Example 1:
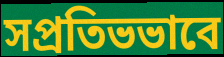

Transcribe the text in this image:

সপ্রতিভভাবে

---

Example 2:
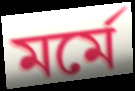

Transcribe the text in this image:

মর্মে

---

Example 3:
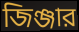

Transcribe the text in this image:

জিঞ্জার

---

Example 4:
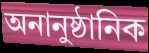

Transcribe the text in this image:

অনানুষ্ঠানিক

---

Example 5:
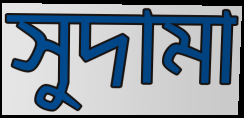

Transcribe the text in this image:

সুদামা